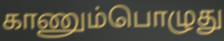
காணும்பொழுது